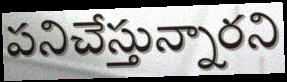
పనిచేస్తున్నారని